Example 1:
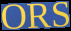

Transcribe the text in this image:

ORS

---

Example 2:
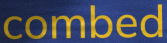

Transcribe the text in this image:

combed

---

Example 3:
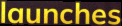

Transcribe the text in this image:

launches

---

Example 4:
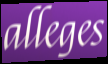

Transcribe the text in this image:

alleges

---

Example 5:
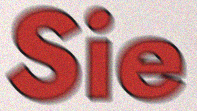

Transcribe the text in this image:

Sie